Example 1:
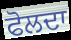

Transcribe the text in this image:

ਫੋਲਦਾ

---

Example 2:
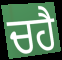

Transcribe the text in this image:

ਚਹੈ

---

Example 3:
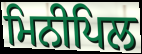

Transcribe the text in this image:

ਮਿਨੀਪਿਲ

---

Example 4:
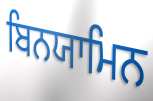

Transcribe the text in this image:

ਬਿਨਯਾਮਿਨ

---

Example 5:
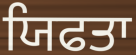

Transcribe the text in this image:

ਯਿਫਤਾ